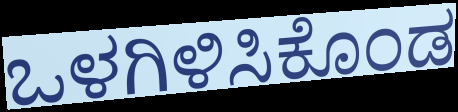
ಒಳಗಿಳಿಸಿಕೊಂಡ